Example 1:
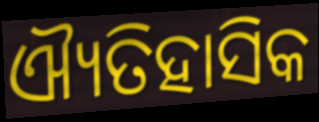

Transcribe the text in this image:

ଐ୍ୟତିହାସିକ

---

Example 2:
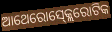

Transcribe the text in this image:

ଆଥେରୋସ୍କ୍ଲେରୋଟିକ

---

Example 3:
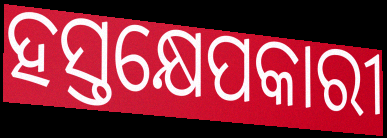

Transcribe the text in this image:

ହସ୍ତକ୍ଷେପକାରୀ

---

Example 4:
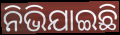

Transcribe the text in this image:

ନିଭିଯାଇଛି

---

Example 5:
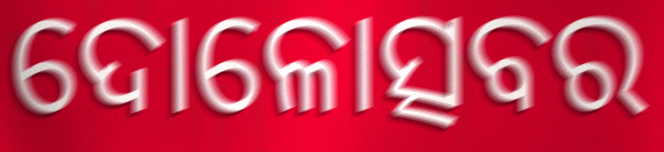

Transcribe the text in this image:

ଦୋଳୋତ୍ସବର